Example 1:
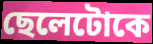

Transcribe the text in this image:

ছেলেটোকে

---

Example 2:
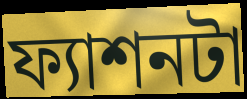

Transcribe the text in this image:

ফ্যাশনটা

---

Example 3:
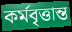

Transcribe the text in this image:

কর্মবৃত্তান্ত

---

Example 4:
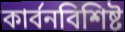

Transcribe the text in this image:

কার্বনবিশিষ্ট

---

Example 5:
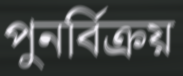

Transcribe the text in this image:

পুনর্বিক্রয়